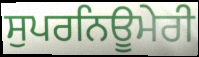
ਸੁਪਰਨਿਊਮੇਰੀ